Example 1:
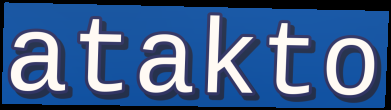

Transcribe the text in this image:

atakto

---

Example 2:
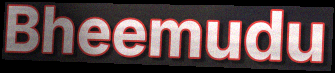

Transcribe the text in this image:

Bheemudu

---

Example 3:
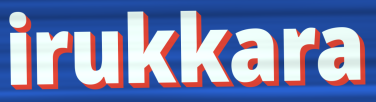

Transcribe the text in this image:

irukkara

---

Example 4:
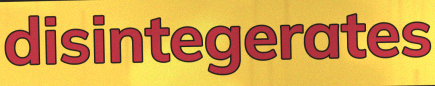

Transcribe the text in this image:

disintegerates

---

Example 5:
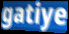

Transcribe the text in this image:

gatiye